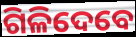
ଗିଳିଦେବେ